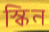
স্কিন